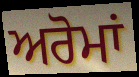
ਅਰੋਮਾਂ